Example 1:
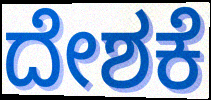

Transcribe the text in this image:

ದೇಶಕೆ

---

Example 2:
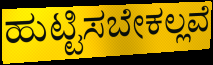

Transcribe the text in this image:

ಹುಟ್ಟಿಸಬೇಕಲ್ಲವೆ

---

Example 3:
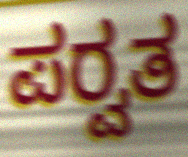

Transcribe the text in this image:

ಪರ್‍ವತ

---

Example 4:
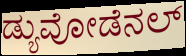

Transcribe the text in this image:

ಡ್ಯುವೋಡೆನಲ್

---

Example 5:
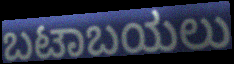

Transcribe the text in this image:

ಬಟಾಬಯಲು